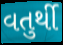
વતુર્થી